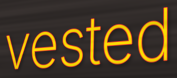
vested